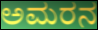
ಅಮರನ